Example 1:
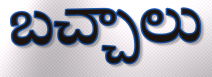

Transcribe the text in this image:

బచ్చాలు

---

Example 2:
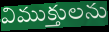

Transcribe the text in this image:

విముక్తులను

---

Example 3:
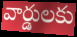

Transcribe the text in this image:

వార్డులకు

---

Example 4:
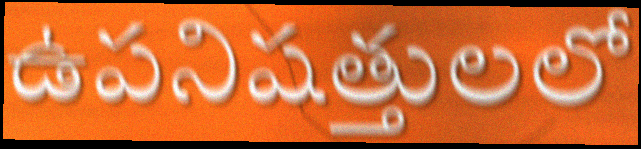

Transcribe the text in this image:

ఉపనిషత్తులలో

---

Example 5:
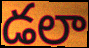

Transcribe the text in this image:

డలా